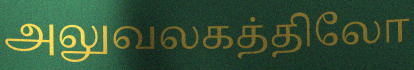
அலுவலகத்திலோ